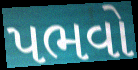
પભવો